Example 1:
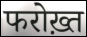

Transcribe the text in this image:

फरोख़्त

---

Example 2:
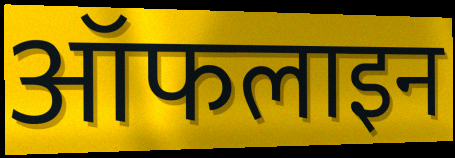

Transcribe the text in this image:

ऑफलाइन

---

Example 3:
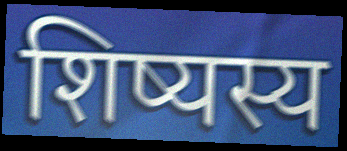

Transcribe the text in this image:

शिष्यस्य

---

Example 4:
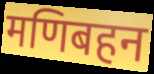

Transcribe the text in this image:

मणिबहन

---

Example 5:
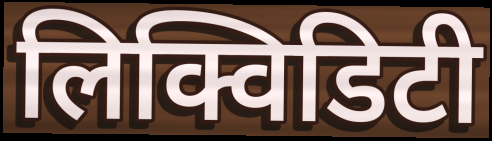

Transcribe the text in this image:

लिक्विडिटी